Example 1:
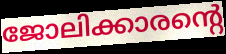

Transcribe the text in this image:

ജോലിക്കാരന്റെ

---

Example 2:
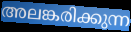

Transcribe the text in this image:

അലങ്കരിക്കുന്ന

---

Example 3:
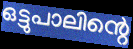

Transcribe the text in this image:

ഒട്ടുപാലിന്റെ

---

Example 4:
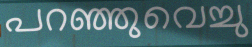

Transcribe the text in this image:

പറഞ്ഞുവെച്ചു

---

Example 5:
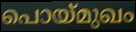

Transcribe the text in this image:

പൊയ്മുഖം